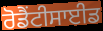
ਰੋਡੈਂਟੀਸਾਈਡ